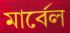
মার্বেল